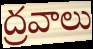
ద్రవాలు